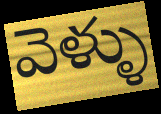
వెళ్ళు